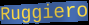
Ruggiero